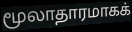
மூலாதாரமாகக்